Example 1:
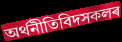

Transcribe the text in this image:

অৰ্থনীতিবিদসকলৰ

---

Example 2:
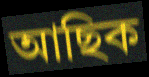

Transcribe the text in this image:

আছিক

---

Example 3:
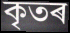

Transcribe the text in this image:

কৃতৰ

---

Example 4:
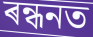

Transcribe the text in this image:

ৰন্ধনত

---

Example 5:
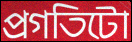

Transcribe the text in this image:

প্ৰগতিটো